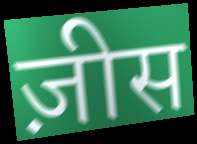
ज़ीस